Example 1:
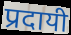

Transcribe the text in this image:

प्रदायी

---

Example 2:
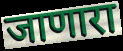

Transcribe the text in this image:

जाणारा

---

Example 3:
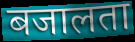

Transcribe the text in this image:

बजालता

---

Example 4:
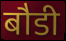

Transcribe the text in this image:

बौडी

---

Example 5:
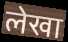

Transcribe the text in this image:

लेखा